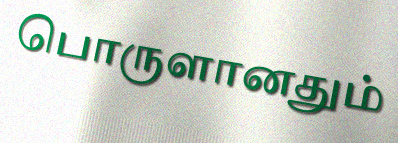
பொருளானதும்